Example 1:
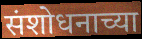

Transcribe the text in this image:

संशोधनाच्या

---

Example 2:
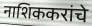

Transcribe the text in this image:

नाशिककरांचे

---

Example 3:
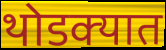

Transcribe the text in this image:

थोडक्‍यात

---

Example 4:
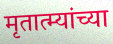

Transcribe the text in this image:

मृतात्म्यांच्या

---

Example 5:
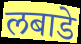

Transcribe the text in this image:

लबाडे